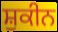
ਸ਼ੁਕੀਨ